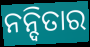
ନନ୍ଦିତାର